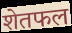
शेतफल